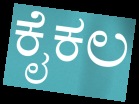
ಕೈಕಲ